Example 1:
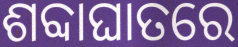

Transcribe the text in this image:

ଶବ୍ଦାଘାତରେ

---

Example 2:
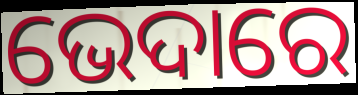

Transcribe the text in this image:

ଭେଦାରେ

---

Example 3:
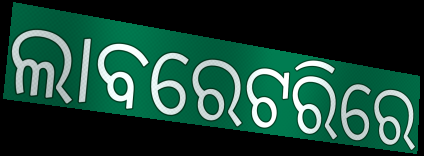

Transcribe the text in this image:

ଲାବରେଟରିରେ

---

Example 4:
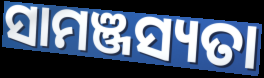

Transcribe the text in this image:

ସାମଞ୍ଜସ୍ୟତା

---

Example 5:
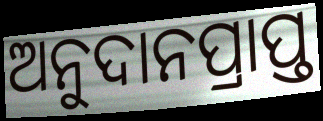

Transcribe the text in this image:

ଅନୁଦାନପ୍ରାପ୍ତ